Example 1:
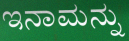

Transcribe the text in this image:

ಇನಾಮನ್ನು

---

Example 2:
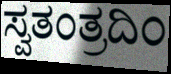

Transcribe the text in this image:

ಸ್ವತಂತ್ರದಿಂ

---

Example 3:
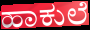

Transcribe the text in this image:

ಹಾಕುಲೆ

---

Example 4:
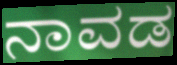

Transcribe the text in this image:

ನಾವಡ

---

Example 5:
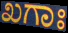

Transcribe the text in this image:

ಖಗಾಃ